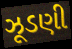
ઝૂડણી